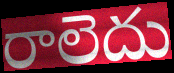
రాలెదు